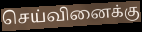
செய்வினைக்கு